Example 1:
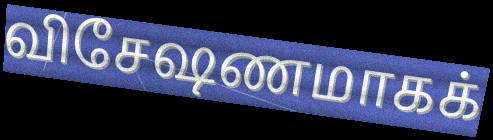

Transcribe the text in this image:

விசேஷணமாகக்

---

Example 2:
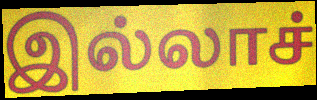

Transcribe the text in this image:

இல்லாச்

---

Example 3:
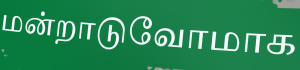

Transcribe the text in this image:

மன்றாடுவோமாக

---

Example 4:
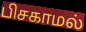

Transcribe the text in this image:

பிசகாமல்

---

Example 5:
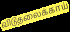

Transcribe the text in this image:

விடுதலைக்காய்